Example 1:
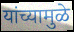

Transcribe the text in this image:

यांच्यामुळे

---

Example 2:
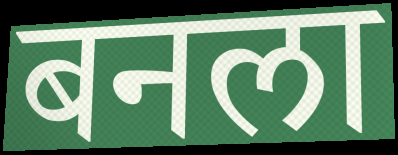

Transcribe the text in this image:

बनला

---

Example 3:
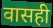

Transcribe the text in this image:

वासही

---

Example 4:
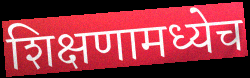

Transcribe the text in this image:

शिक्षणामध्येच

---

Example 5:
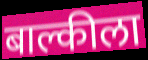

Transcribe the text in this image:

बाल्कीला